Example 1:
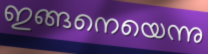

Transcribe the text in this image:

ഇങ്ങനെയെന്നു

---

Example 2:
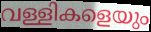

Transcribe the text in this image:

വള്ളികളെയും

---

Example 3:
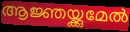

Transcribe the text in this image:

ആജ്ഞയ്ക്കുമേൽ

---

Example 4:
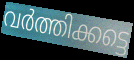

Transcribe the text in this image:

വർത്തിക്കട്ടെ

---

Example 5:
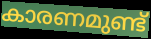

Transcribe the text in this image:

കാരണമുണ്ട്